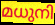
മധുനി